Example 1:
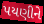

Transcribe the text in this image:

પયણીને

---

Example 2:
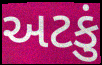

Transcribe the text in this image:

અટકું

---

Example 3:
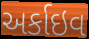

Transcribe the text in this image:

અર્કાઇવ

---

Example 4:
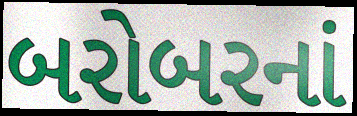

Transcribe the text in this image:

બરોબરનાં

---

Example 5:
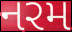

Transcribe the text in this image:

નરમ